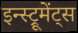
इन्स्ट्रूमेंट्स